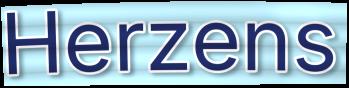
Herzens